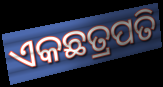
ଏକଛତ୍ରପତି